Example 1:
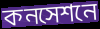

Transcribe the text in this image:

কনসেশনে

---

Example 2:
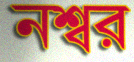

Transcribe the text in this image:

নশ্বর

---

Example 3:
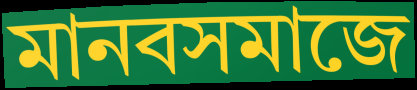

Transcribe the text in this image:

মানবসমাজে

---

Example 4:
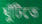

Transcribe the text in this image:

ঘুঁটিতে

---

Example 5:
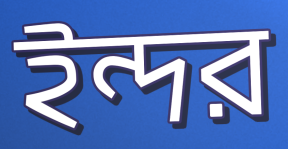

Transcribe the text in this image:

ইন্দর